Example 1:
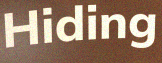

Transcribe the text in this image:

Hiding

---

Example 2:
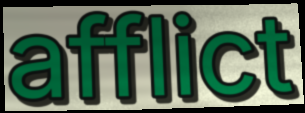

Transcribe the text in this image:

afflict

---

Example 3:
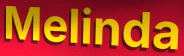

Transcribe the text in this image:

Melinda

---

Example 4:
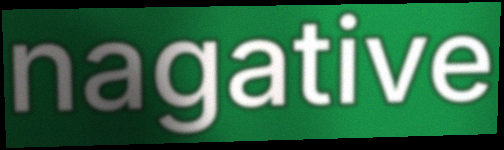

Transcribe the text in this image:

nagative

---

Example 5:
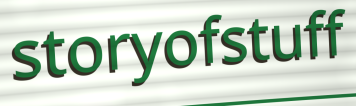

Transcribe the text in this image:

storyofstuff